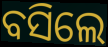
ବସିଲେ